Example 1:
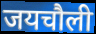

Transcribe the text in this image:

जयचौली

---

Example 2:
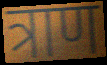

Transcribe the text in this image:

त्राण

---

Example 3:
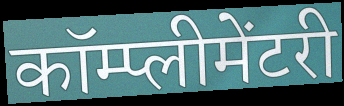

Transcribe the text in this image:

कॉम्प्लीमेंटरी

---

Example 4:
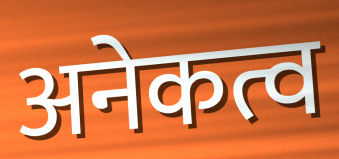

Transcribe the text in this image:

अनेकत्व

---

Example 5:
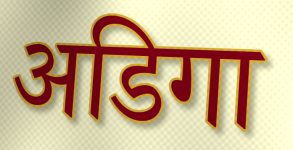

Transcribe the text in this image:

अडिगा